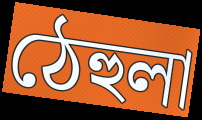
ঠেহুলা